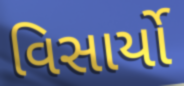
વિસાર્યો